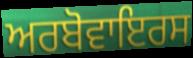
ਅਰਬੋਵਾਇਰਸ